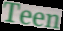
Teen